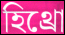
হিথ্রো